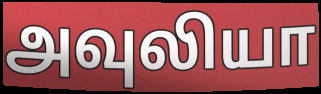
அவுலியா